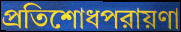
প্রতিশোধপরায়ণা